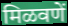
मिळवणें